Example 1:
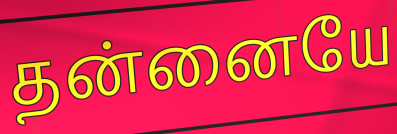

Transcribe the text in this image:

தன்னையே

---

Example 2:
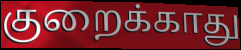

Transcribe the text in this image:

குறைக்காது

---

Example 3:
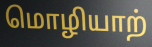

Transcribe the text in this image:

மொழியாற்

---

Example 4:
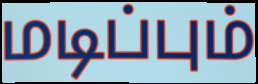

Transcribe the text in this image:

மடிப்பும்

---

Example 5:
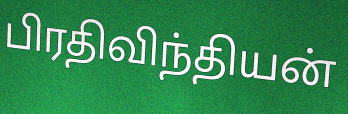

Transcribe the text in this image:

பிரதிவிந்தியன்